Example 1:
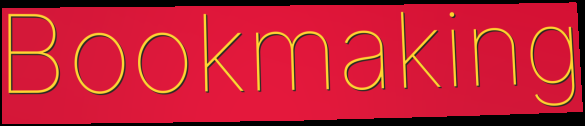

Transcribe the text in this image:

Bookmaking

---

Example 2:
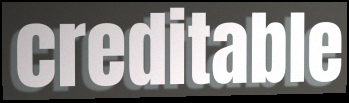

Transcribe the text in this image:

creditable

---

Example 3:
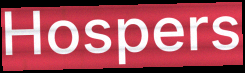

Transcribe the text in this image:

Hospers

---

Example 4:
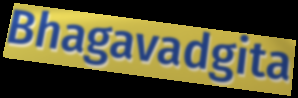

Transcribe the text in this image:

Bhagavadgita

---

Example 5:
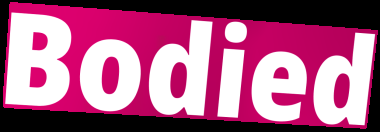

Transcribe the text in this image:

Bodied